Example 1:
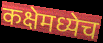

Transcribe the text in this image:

कक्षेमध्येच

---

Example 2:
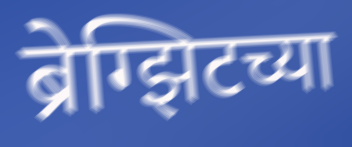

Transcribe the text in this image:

ब्रेग्झिटच्या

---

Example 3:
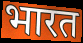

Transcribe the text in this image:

भारत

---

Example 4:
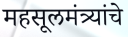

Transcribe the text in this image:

महसूलमंत्र्यांचे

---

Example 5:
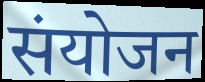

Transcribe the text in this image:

संयोजन